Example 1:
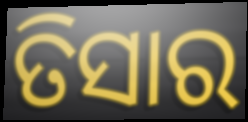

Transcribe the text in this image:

ତିସାର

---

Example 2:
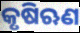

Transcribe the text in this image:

କୃଷିଋଣ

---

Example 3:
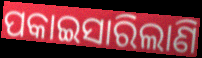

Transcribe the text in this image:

ପକାଇସାରିଲାଣି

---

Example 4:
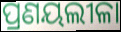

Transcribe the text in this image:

ପ୍ରଣୟଲୀଳା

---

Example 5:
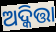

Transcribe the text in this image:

ଅଦ୍କିତ୍ତା